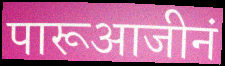
पारूआजीनं